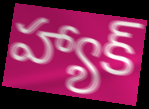
హ్యాక్